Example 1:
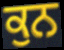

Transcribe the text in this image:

ਕੁਨ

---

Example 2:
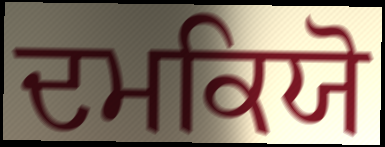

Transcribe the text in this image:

ਦਮਕਿਯੋ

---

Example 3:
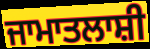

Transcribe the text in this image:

ਜਾਮਾਤਲਾਸ਼ੀ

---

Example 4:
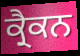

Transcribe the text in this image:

ਕ੍ਰੈਕਨ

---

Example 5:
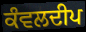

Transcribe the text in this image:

ਕੰਵਲਦੀਪ